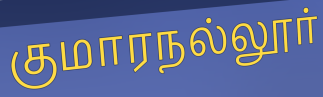
குமாரநல்லூர்